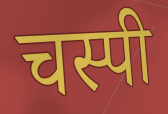
चस्पी